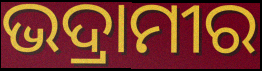
ଭଦ୍ରାମୀର